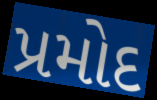
પ્રમોદ